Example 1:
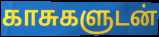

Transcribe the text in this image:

காசுகளுடன்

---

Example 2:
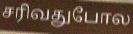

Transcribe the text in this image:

சரிவதுபோல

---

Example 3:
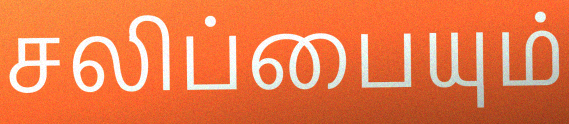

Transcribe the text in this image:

சலிப்பையும்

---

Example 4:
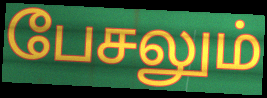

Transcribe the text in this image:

பேசலும்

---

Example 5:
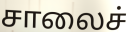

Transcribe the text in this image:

சாலைச்